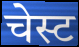
चेस्ट